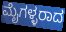
ಮೈಗಳ್ಳರಾದ